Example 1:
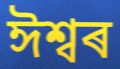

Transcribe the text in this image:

ঈশ্বৰ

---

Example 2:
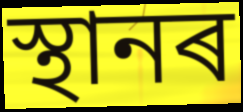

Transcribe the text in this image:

স্থানৰ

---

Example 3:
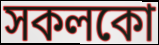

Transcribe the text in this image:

সকলকো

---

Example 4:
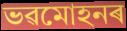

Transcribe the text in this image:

ভৱমোহনৰ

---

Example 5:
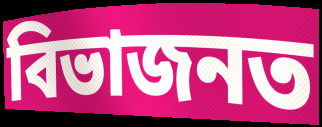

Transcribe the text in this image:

বিভাজনত